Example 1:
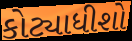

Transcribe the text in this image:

કોટ્યાધીશો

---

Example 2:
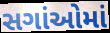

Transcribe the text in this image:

સગાંઓમાં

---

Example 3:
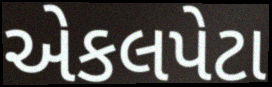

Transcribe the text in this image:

એકલપેટા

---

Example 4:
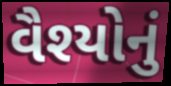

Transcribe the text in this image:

વૈશ્યોનું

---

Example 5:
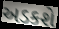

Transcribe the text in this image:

અડકશે